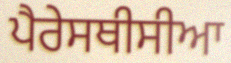
ਪੈਰੇਸਥੀਸੀਆ